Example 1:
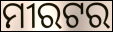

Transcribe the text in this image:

ମୀରଟର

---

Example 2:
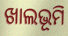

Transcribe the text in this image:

ଖାଲଭୂମି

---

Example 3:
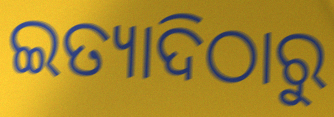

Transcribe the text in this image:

ଇତ୍ୟାଦିଠାରୁ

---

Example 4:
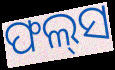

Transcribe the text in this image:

ଫଲ୍‌ସ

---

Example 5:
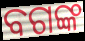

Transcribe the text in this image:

ବଗଙ୍କ